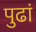
पुढां